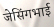
जेसिंगभाई